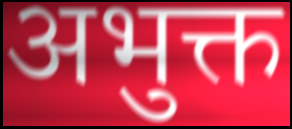
अभुक्त